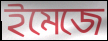
ইমেজে